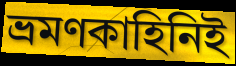
ভ্রমণকাহিনিই